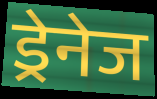
ड्रेनेज